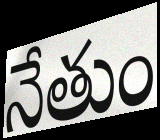
నేతుం